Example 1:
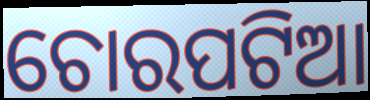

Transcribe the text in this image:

ଚୋରପଟିଆ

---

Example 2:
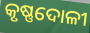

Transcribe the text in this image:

କୃଷ୍ଣଦୋଳୀ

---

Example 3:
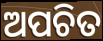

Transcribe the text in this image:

ଅପଚିତ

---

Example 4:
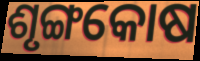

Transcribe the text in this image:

ଶୃଙ୍ଗକୋଷ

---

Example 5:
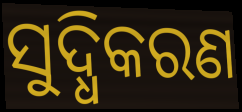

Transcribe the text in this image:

ସୁଦ୍ଧିକରଣ